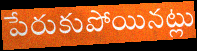
పేరుకుపోయినట్లు